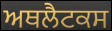
ਅਥਲੈਟਕਸ